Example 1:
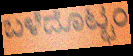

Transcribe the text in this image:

ಬಳೆದೊಟ್ಟಂ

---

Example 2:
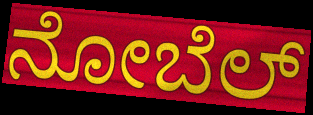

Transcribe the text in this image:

ನೋಬೆಲ್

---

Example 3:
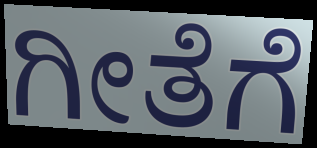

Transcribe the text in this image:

ಗೀತೆಗೆ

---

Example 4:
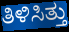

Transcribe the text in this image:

ತಿಳಿಸಿತ್ತು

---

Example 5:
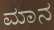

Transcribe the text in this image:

ಮಾನ